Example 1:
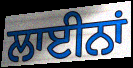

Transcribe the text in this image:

ਲਾਈਨਾਂ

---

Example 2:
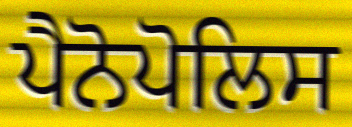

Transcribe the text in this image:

ਪੈਨੋਪੋਲਿਸ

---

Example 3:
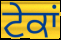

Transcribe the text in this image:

ਟੇਕਾਂ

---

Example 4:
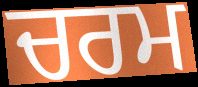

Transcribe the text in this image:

ਚਰਮ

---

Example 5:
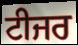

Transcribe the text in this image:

ਟੀਜਰ